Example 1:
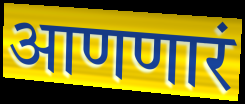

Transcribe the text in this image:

आणणारं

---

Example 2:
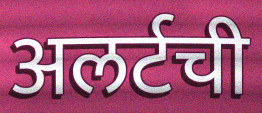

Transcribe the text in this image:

अलर्टची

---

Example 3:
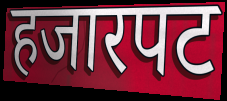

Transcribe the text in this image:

हजारपट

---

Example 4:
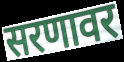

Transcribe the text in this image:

सरणावर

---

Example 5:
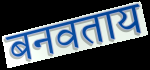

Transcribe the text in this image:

बनवताय